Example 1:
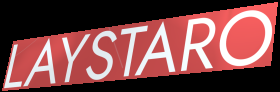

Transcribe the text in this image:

LAYSTARO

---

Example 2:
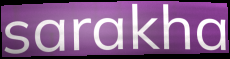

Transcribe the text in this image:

sarakha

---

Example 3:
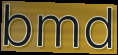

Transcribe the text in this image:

bmd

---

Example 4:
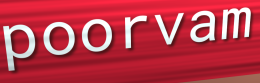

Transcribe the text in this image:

poorvam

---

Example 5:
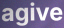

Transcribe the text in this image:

agive